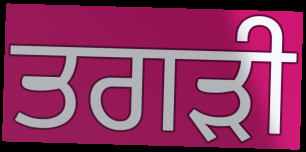
ਤਗੜੀ